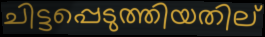
ചിട്ടപ്പെടുത്തിയതില്